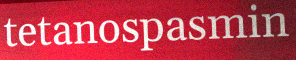
tetanospasmin